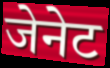
जेनेट